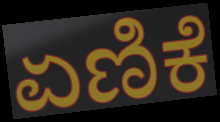
ಏಣಿಕೆ